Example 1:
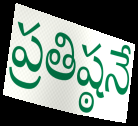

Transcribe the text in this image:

ప్రతిష్ఠనే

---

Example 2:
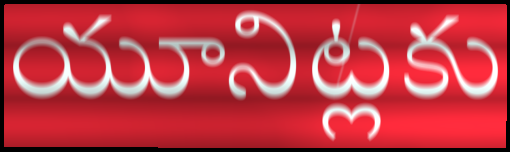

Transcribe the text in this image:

యూనిట్లకు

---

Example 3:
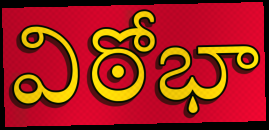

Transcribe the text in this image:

విఠోభా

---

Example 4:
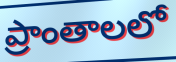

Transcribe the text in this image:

ప్రాంతాలలో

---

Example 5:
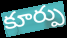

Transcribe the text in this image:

కూర్పు